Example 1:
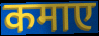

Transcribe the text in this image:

कमाए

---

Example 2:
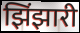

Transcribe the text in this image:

झिंझारी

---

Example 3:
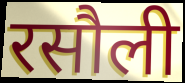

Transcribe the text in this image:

रसौली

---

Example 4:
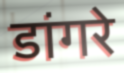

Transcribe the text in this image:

डांगरे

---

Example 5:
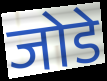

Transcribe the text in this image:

जोडे